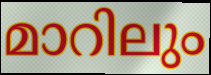
മാറിലും